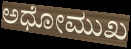
ಅಧೋಮುಖ